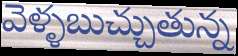
వెళ్ళబుచ్చుతున్న